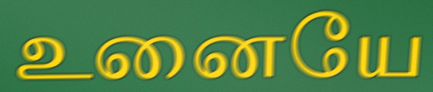
உனையே